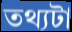
তথ্যটা